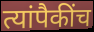
त्यांपैकींच